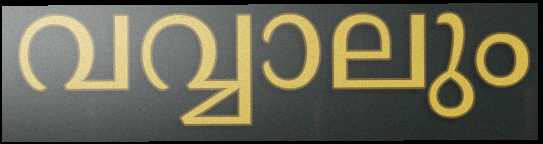
വവ്വാലും